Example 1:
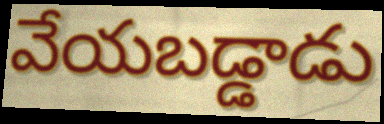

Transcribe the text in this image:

వేయబడ్డాడు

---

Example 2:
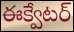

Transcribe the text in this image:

ఈక్వేటర్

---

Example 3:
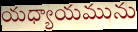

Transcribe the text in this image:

యధ్యాయమును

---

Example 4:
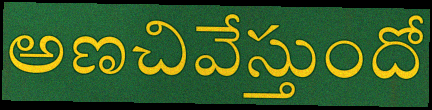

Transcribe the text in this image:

అణచివేస్తుందో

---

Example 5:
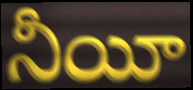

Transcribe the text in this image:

నీయీ